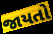
જાયતો